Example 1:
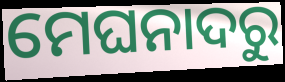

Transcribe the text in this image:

ମେଘନାଦରୁ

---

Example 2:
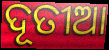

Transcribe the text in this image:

ଦୂତୀଆ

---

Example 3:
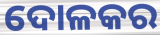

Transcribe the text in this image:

ଦୋଳକର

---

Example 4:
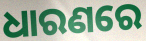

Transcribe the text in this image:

ଧାରଣରେ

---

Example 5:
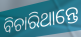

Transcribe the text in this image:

ବିଚାରିଥାନ୍ତେ